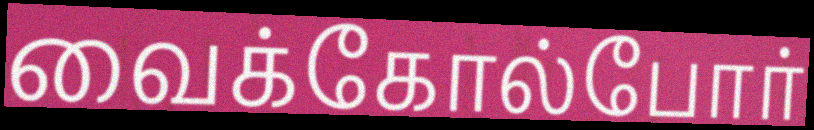
வைக்கோல்போர்